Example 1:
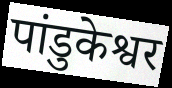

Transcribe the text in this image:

पांडुकेश्वर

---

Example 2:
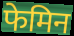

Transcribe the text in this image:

फेमिन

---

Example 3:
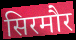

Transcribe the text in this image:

सिरमौर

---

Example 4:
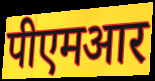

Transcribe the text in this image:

पीएमआर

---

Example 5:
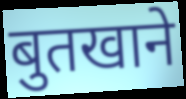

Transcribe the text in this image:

बुतखाने